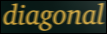
diagonal